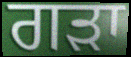
ਗੜਾ